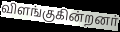
விளங்குகின்றனர்